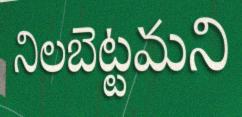
నిలబెట్టమని